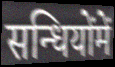
सन्धियोंमें